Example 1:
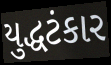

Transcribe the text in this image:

યુદ્ધટંકાર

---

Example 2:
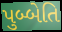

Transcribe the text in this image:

પુબ્બેતિ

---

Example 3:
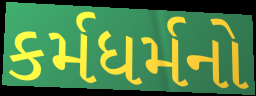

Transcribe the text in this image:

કર્મધર્મનો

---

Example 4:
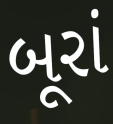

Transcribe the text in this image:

બૂરાં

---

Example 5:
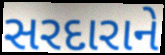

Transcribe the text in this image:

સરદારાને